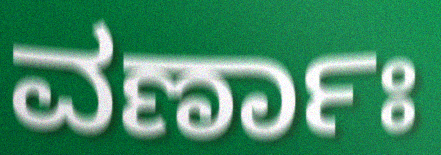
ವರ್ಣಾಃ